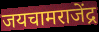
जयचामराजेंद्र